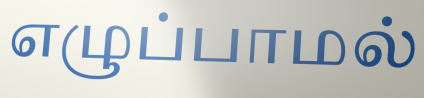
எழுப்பாமல்